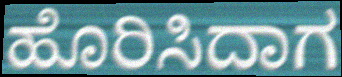
ಹೊರಿಸಿದಾಗ